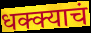
धक्क्याचं